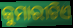
କୁମାରୀଟିଏ